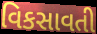
વિકસાવતી